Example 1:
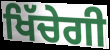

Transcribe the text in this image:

ਖਿੱਚੇਗੀ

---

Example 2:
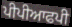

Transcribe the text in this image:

ਪੀਪੀਆਫਪੀ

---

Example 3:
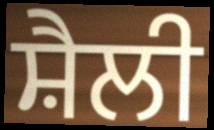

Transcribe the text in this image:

ਸ਼ੈਲੀ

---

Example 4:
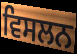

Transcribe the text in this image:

ਵਿਸਲਨ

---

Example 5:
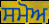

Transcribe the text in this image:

ਸਮੋਅ